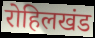
रोहिलखंड